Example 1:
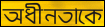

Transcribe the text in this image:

অধীনতাকে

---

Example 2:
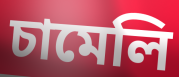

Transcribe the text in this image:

চামেলি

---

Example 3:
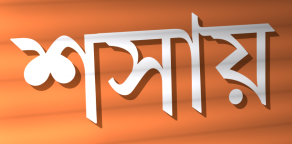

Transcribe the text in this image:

শসায়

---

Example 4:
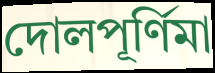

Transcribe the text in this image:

দোলপূর্ণিমা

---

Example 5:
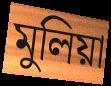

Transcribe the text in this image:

মুলিয়া